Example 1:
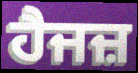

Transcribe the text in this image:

ਹੈਜਜ਼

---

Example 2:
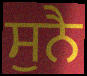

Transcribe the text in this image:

ਸੁਨੈ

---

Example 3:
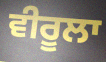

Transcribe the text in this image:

ਵੀਰੂਲਾ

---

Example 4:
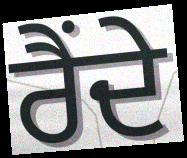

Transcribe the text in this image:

ਰੈਂਦੇ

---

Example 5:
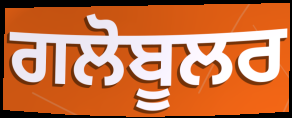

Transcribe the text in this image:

ਗਲੋਬੂਲਰ